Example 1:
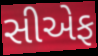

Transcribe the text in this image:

સીએફ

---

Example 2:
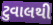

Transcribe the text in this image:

ટુવાલથી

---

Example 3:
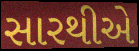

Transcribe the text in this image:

સારથીએ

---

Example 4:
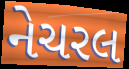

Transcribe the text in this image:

નેચરલ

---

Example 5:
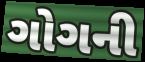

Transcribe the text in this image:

ગોગની